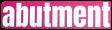
abutment